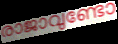
രാജാവുണ്ടോ